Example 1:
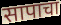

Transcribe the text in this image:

सापाचा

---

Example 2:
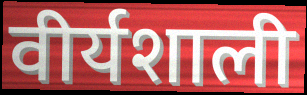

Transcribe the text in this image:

वीर्यशाली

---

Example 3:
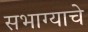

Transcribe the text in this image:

सभाग्याचे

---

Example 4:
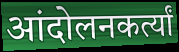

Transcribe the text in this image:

आंदोलनकर्त्यां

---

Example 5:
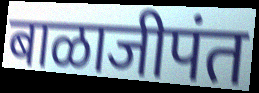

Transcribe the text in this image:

बाळाजीपंत